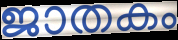
ജാതകം